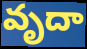
వృదా